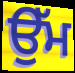
ਉੱਮ